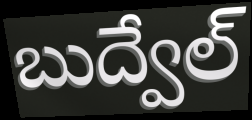
బుద్వేల్